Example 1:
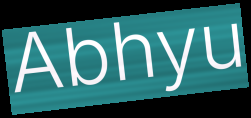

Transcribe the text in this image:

Abhyu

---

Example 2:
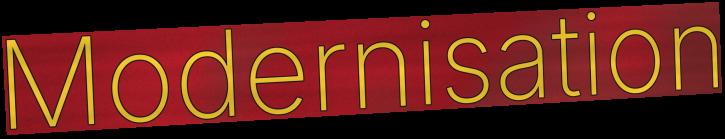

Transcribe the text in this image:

Modernisation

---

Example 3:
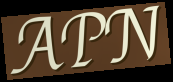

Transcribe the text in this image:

APN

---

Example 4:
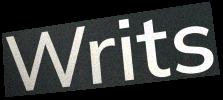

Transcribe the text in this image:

Writs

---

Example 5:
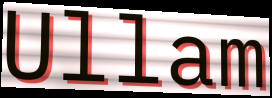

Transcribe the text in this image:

Ullam